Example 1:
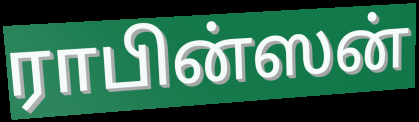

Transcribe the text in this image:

ராபின்ஸன்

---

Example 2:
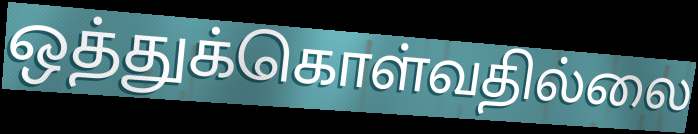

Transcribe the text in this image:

ஒத்துக்கொள்வதில்லை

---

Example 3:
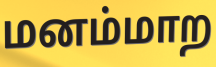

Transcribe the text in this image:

மனம்மாற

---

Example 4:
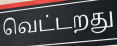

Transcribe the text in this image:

வெட்டறது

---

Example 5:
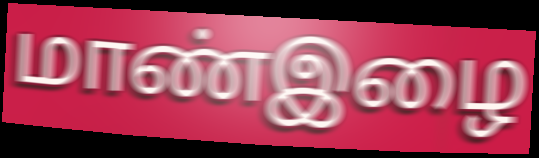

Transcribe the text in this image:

மாண்இழை